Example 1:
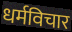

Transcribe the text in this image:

धर्मविचार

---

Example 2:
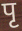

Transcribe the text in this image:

पृ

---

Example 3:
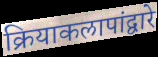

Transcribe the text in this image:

क्रियाकलापांद्वारे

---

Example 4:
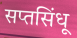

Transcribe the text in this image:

सप्तसिंधू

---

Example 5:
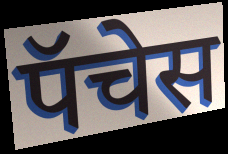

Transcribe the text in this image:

पॅचेस